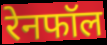
रेनफॉल